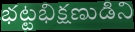
భట్టభిక్షణుడిని